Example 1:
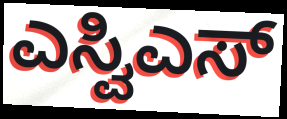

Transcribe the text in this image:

ಎಸ್ವಿಎಸ್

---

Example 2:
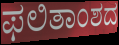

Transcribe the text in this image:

ಫಲಿತಾಂಶದ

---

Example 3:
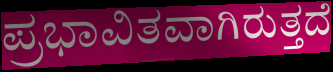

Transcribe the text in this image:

ಪ್ರಭಾವಿತವಾಗಿರುತ್ತದೆ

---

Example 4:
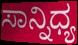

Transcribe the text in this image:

ಸಾನ್ನಿಧ್ಯ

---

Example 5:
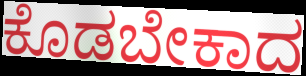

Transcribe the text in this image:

ಕೊಡಬೇಕಾದ